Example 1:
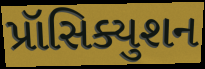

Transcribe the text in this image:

પ્રૉસિક્યુશન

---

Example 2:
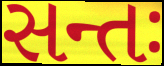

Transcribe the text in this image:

સન્તઃ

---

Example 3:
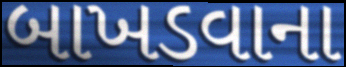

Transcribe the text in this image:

બાખડવાના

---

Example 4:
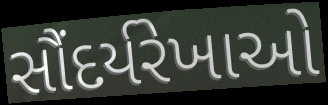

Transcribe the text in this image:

સૌંદર્યરેખાઓ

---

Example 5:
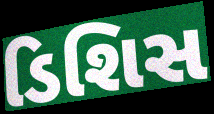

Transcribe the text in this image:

ડિશિસ